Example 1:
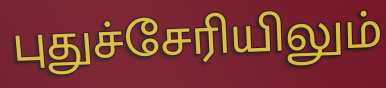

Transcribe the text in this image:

புதுச்சேரியிலும்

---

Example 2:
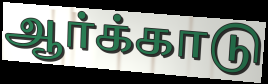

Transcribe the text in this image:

ஆர்க்காடு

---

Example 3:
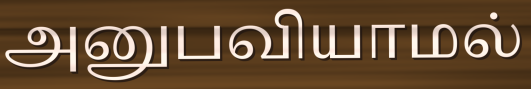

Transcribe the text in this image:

அனுபவியாமல்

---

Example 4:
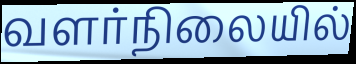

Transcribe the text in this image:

வளர்நிலையில்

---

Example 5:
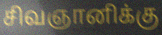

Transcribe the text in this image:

சிவஞானிக்கு